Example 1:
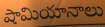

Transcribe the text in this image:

షామియానాలు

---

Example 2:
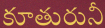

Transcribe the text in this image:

కూతురునీ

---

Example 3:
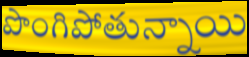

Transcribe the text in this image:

పొంగిపోతున్నాయి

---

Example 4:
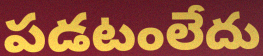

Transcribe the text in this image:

పడటంలేదు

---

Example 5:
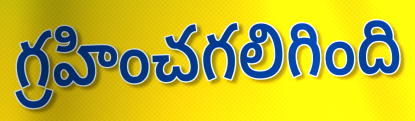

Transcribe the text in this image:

గ్రహించగలిగింది